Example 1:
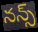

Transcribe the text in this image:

నన్స్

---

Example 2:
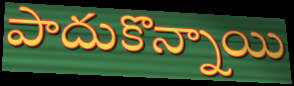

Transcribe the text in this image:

పాదుకొన్నాయి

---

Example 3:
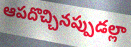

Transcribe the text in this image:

ఆపదొచ్చినప్పుడల్లా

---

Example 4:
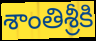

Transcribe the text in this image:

శాంతిశ్రీకి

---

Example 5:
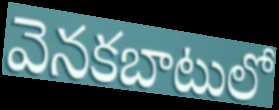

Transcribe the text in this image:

వెనకబాటులో